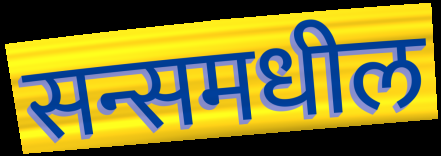
सन्समधील